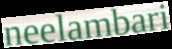
neelambari